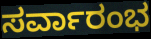
ಸರ್ವಾರಂಭ